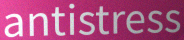
antistress